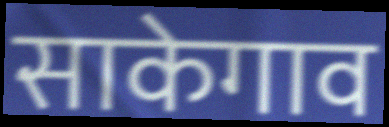
साकेगाव